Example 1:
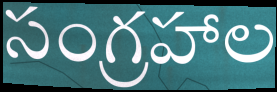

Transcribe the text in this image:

సంగ్రహాల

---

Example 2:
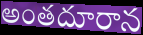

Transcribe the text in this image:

అంతదూరాన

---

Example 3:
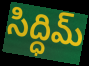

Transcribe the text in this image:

సిద్ధిమ్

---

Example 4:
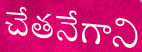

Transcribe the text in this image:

చేతనేగాని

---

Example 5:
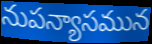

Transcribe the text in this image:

నుపన్యాసమున